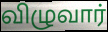
விழுவார்